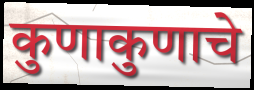
कुणाकुणाचे